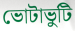
ভোটাভুটি